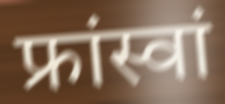
फ्रांस्वां